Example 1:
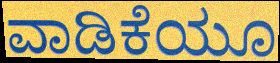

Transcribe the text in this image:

ವಾಡಿಕೆಯೂ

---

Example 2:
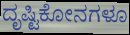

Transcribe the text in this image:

ದೃಷ್ಟಿಕೋನಗಳೂ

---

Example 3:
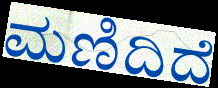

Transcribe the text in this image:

ಮಣಿದಿದೆ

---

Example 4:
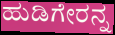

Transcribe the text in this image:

ಹುಡಿಗೇರನ್ನ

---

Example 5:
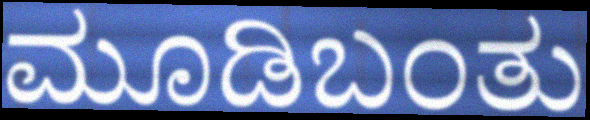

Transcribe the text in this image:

ಮೂಡಿಬಂತು